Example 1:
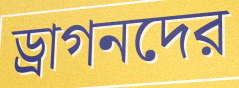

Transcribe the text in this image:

ড্রাগনদের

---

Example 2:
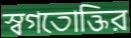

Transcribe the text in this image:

স্বগতোক্তির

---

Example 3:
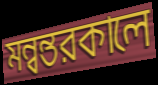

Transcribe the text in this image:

মন্বন্তরকালে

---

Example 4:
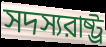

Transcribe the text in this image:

সদস্যরাষ্ট্র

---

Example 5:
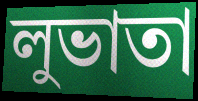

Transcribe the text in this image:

লুভাতা